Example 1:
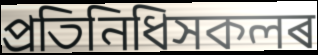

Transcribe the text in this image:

প্ৰতিনিধিসকলৰ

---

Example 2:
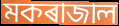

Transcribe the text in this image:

মকৰাজাল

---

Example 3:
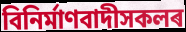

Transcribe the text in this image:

বিনিৰ্মাণবাদীসকলৰ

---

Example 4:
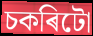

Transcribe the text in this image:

চকৰিটো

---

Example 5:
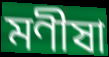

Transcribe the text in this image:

মণীষা